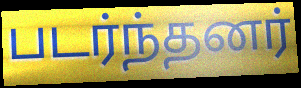
படர்ந்தனர்